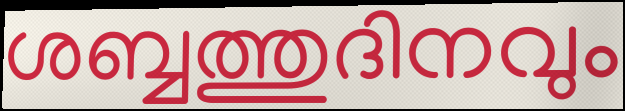
ശബ്ബത്തുദിനവും